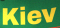
Kiev